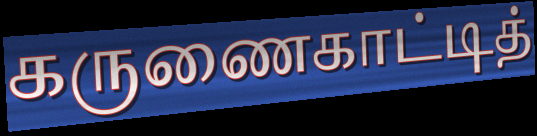
கருணைகாட்டித்